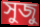
সুজু